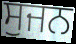
ਸੁਜਨ